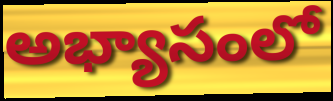
అభ్యాసంలో